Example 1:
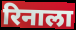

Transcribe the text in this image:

रिनाला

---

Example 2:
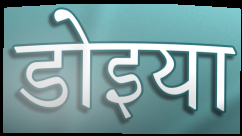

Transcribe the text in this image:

डोइया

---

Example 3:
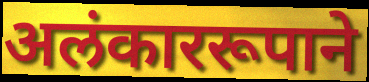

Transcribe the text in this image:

अलंकाररूपाने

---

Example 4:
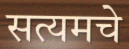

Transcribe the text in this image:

सत्यमचे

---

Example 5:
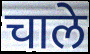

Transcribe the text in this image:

चाले